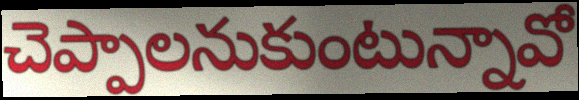
చెప్పాలనుకుంటున్నావో